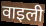
वाइली